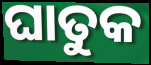
ଘାତୁକ